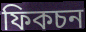
ফিকচন